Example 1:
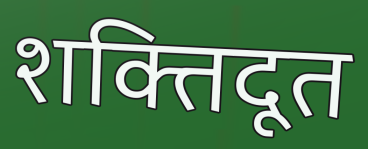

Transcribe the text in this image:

शक्तिदूत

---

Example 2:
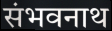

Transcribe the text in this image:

संभवनाथ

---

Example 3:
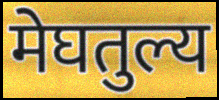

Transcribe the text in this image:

मेघतुल्य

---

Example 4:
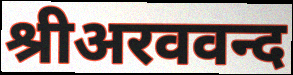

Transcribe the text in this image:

श्रीअरववन्द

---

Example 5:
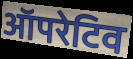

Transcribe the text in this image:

ऑपरेटिव